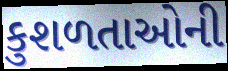
કુશળતાઓની